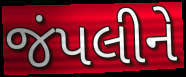
જંપલીને